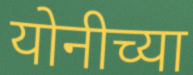
योनीच्या